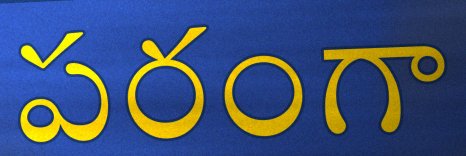
పరంగా